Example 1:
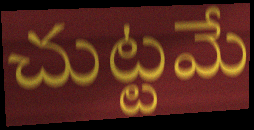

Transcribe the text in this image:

చుట్టమే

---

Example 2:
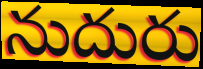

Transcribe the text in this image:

నుదురు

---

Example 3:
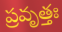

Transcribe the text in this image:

ప్రవృత్తః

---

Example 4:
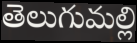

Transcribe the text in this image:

తెలుగుమల్లి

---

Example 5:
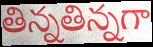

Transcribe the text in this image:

తిన్నతిన్నగా